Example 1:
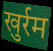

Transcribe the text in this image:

खुर्रम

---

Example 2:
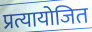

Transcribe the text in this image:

प्रत्यायोजित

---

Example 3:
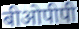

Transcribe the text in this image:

बीओपीपी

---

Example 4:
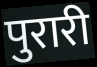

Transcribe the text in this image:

पुरारी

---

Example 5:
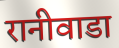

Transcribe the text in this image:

रानीवाडा